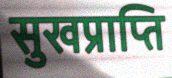
सुखप्राप्ति